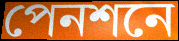
পেনশনে